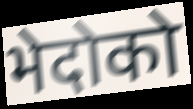
भेदोको